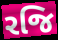
રજિ